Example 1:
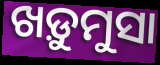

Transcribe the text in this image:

ଖଡ଼ୁମୁସା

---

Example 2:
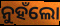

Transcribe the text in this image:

ନୁହଁଲୋ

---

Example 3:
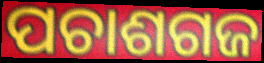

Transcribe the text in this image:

ପଚାଶଗଜ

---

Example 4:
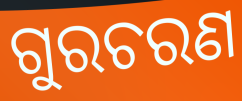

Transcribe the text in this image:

ଗୁରଚରଣ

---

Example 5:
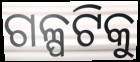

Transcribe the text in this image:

ଗଳ୍ପଟିକୁ